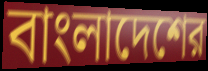
বাংলাদেশের